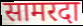
सामरदा